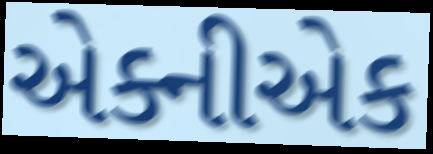
એક્નીએક